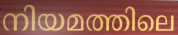
നിയമത്തിലെ